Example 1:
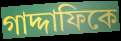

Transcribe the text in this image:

গাদ্দাফিকে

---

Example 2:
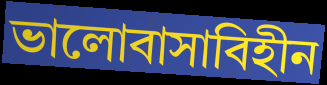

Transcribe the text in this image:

ভালোবাসাবিহীন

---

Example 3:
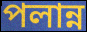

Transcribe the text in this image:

পলান্ন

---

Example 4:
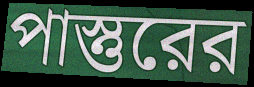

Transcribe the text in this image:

পাস্তুরের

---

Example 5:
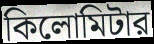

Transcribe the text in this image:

কিলোমিটার